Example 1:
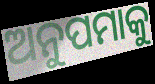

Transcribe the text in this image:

ଅନୁପମାକୁ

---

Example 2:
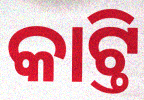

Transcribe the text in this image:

କାଟ୍ତି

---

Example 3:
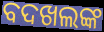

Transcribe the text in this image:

ବଦଖଲଙ୍କ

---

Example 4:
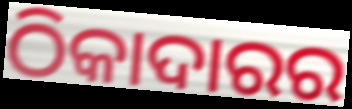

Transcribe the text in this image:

ଠିକାଦାରର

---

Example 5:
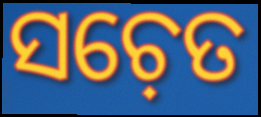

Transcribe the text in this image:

ସଚ଼େତ